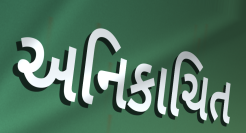
અનિકાચિત